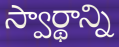
స్వార్థాన్ని